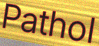
Pathol